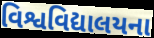
વિશ્વવિદ્યાલયના